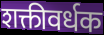
शक्तीवर्धक